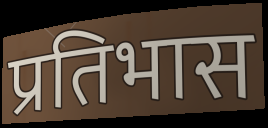
प्रतिभास